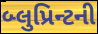
બ્લુપ્રિન્ટની